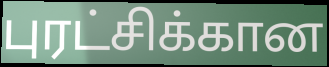
புரட்சிக்கான